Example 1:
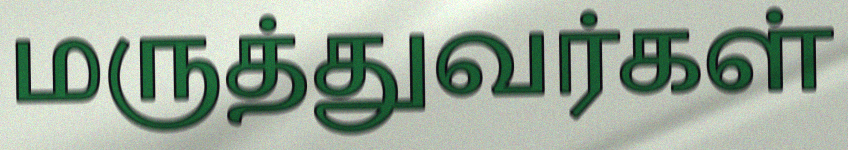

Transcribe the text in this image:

மருத்துவர்கள்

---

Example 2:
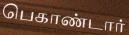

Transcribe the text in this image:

பெகாண்டார்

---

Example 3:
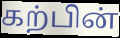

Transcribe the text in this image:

கற்பின்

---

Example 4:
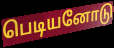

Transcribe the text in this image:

பெடியனோடு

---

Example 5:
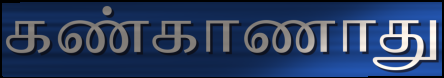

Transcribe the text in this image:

கண்காணாது